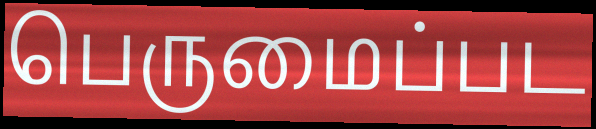
பெருமைப்பட